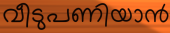
വീടുപണിയാൻ